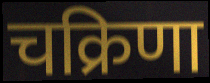
चक्रिणा